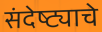
संदेष्ट्याचे